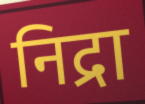
निद्रा